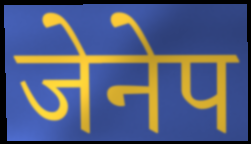
जेनेप